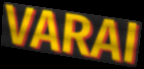
VARAI